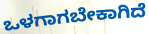
ಒಳಗಾಗಬೇಕಾಗಿದೆ